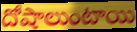
దోషాలుంటాయి